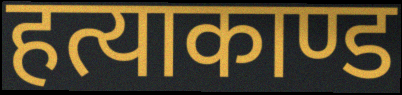
हत्याकाण्ड